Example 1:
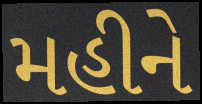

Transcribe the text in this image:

મહીને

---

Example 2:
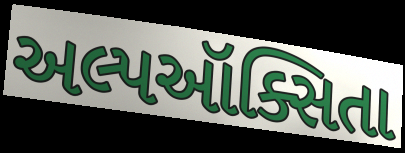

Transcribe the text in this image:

અલ્પઑક્સિતા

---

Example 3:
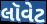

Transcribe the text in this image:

લૉવેટ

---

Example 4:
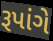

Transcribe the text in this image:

રૂપાંગે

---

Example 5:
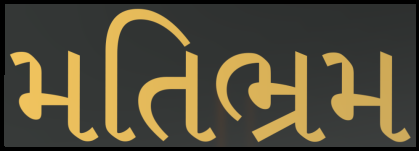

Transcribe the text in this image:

મતિભ્રમ